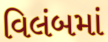
વિલંબમાં